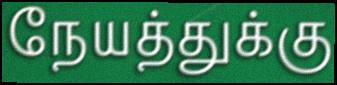
நேயத்துக்கு